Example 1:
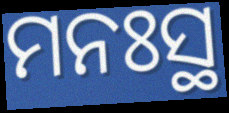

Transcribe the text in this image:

ମନଃସ୍ଥ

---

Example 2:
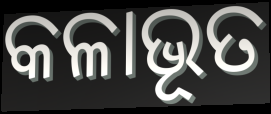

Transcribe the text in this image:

କଳାଭୂତ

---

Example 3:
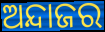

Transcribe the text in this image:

ଅନ୍ଦାଜର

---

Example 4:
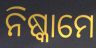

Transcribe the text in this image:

ନିଷ୍କାମେ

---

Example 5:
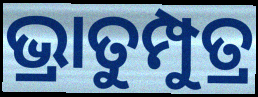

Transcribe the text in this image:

ଭ୍ରାତୁମ୍ପୁତ୍ର